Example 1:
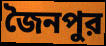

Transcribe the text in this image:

জৈনপুর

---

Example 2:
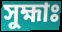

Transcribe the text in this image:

সুহ্মাঃ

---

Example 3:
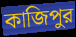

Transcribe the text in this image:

কাজিপুর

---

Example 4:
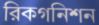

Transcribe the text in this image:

রিকগনিশন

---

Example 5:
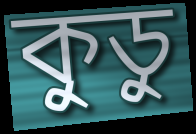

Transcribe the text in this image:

কুডু